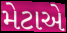
મેટાએ